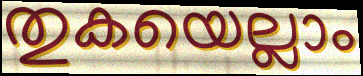
തുകയെല്ലാം